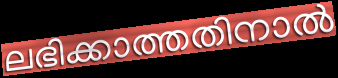
ലഭിക്കാത്തതിനാൽ